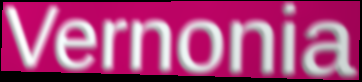
Vernonia